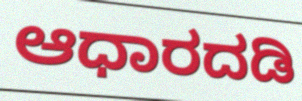
ಆಧಾರದಡಿ